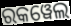
ରକୱେଲ